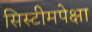
सिस्टीमपेक्षा